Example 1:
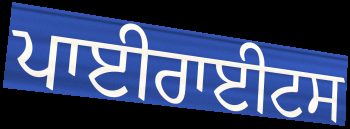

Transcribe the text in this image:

ਪਾਈਰਾਈਟਸ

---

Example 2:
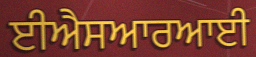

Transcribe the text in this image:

ਈਐਸਆਰਆਈ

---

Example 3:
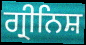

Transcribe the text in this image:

ਗ੍ਰੀਨਿਸ਼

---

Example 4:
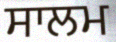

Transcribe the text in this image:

ਸਾਲਮ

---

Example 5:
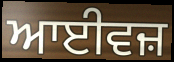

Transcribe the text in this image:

ਆਈਵਜ਼